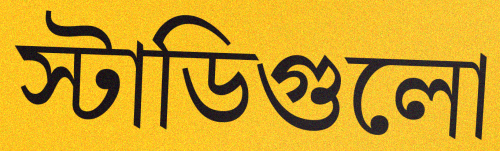
স্টাডিগুলো